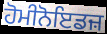
ਹੋਮੀਨੋਇਡਜ਼